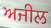
ਅਜੀਲ